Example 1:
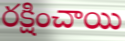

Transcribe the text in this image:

రక్షించాయి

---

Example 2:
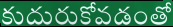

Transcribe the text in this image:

కుదురుకోవడంతో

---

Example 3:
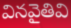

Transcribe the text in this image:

వినవైతివి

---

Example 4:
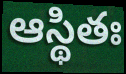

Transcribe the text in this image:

ఆస్థితః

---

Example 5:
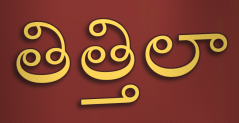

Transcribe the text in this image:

తిత్తిలా